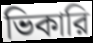
ভিকারি